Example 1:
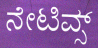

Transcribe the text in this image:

ನೇಟಿವ್ಸ್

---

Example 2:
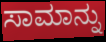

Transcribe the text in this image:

ಸಾಮಾನ್ನು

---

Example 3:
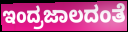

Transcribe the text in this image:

ಇಂದ್ರಜಾಲದಂತೆ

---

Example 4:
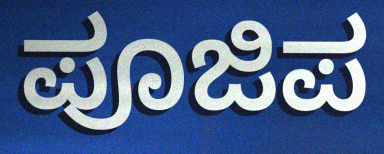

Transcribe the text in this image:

ಪೂಜಿಪ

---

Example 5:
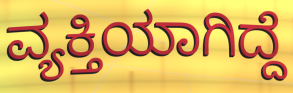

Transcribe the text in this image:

ವ್ಯಕ್ತಿಯಾಗಿದ್ದೆ